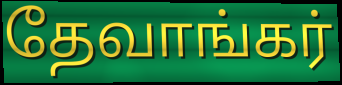
தேவாங்கர்